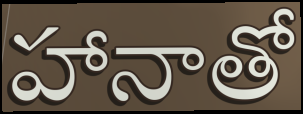
హానాతో